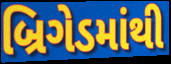
બ્રિગેડમાંથી